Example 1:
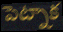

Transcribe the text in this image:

పెట్నాక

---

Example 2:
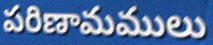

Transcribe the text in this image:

పరిణామములు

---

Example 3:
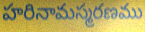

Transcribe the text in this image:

హరినామస్మరణము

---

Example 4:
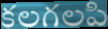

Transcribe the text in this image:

కలగలపి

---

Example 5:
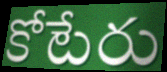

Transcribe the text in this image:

కోటేరు